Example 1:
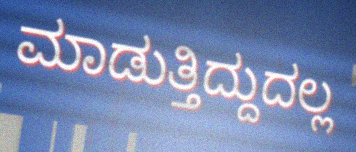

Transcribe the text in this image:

ಮಾಡುತ್ತಿದ್ದುದಲ್ಲ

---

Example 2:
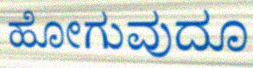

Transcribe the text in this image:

ಹೋಗುವುದೂ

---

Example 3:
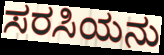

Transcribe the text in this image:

ಸರಸಿಯನು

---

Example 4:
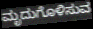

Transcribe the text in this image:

ಮೃದುಗೊಳಿಸುವ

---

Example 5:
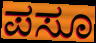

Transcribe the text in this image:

ಪಸೂ